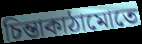
চিন্তাকাঠামোতে